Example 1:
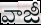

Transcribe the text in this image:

వాజీ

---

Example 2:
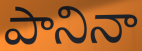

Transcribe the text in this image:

పానినా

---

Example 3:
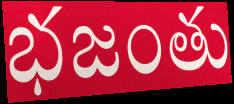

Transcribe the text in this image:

భజంతు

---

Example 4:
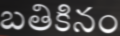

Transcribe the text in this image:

బతికినం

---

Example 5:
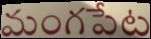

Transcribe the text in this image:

మంగపేట